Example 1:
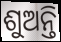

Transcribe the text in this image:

ଶୁଅନ୍ତି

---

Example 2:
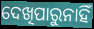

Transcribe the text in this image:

ଦେଖିପାରୁନାହିଁ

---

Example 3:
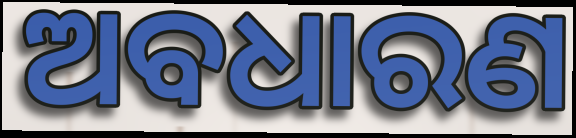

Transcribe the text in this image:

ଅବଧାରଣ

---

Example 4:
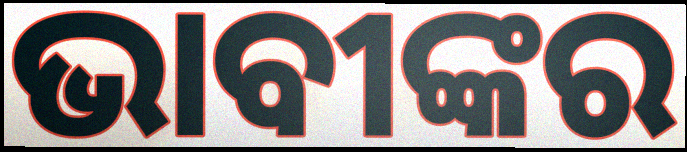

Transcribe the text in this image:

ଭାବୀଙ୍କର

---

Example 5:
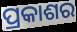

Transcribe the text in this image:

ପ୍ରକାଶର